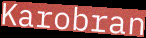
Karobran